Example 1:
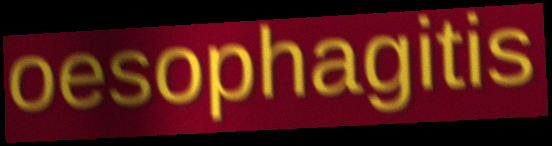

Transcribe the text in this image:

oesophagitis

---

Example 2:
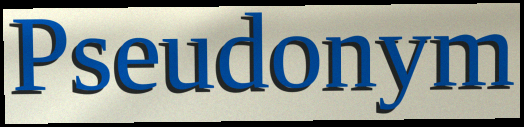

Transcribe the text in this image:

Pseudonym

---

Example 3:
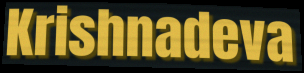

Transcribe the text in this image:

Krishnadeva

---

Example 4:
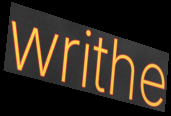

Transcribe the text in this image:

writhe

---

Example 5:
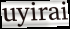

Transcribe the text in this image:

uyirai